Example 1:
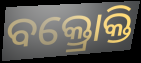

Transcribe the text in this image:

ବକ୍ତ୍ରୋକ୍ତି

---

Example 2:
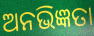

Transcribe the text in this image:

ଅନଭିଜ୍ଞତା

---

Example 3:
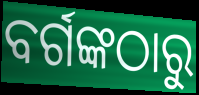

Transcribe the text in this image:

ବର୍ଗଙ୍କଠାରୁ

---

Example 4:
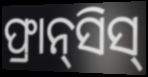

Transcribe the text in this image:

ଫ୍ରାନ୍‌ସିସ୍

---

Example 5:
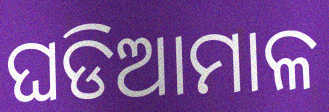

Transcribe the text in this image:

ଘଡିଆମାଳ